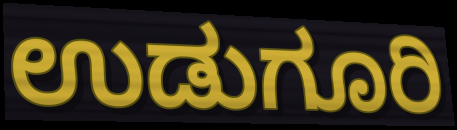
ಉಡುಗೂರಿ